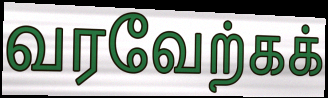
வரவேற்கக்